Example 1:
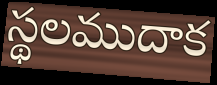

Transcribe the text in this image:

స్థలముదాక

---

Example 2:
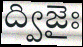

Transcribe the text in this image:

ద్విజైః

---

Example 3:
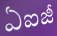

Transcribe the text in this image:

ఏఐజీ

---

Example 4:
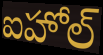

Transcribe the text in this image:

ఐహోల్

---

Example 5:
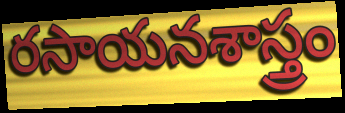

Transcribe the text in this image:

రసాయనశాస్త్రం